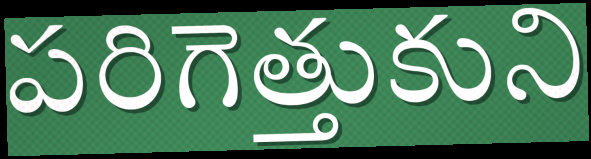
పరిగెత్తుకుని